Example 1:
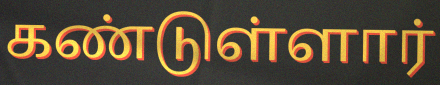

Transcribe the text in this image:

கண்டுள்ளார்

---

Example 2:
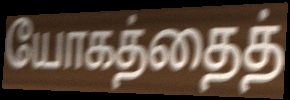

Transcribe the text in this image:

யோகத்தைத்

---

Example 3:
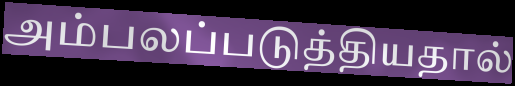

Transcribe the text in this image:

அம்பலப்படுத்தியதால்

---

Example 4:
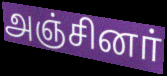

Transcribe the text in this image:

அஞ்சினர்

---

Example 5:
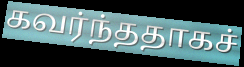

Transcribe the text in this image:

கவர்ந்ததாகச்